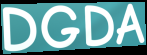
DGDA